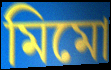
মিমো